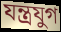
যন্ত্রযুগ